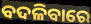
ବଦଳିବାରେ